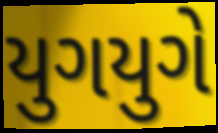
યુગયુગે